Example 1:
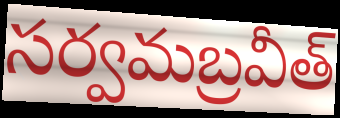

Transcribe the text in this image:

సర్వమబ్రవీత్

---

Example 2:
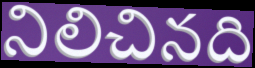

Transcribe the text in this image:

నిలిచినది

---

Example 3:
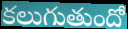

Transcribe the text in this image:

కలుగుతుందో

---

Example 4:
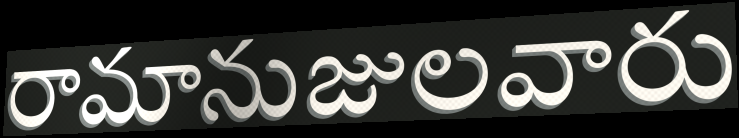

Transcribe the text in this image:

రామానుజులవారు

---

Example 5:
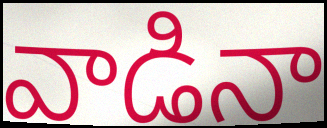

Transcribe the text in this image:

వాడినా